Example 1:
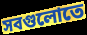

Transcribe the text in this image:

সবগুলোতে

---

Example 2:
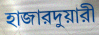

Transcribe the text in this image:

হাজারদুয়ারী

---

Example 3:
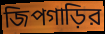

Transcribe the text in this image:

জিপগাড়ির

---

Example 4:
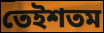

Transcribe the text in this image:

তেইশতম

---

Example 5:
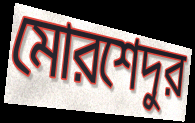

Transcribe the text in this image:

মোরশেদুর